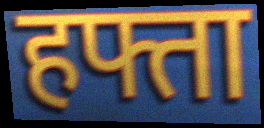
हफ्ता